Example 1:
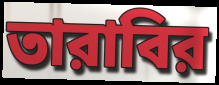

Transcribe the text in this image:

তারাবির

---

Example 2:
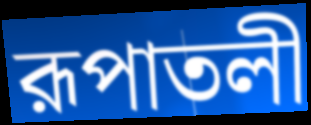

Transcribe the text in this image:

রূপাতলী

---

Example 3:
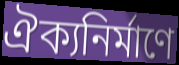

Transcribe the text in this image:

ঐক্যনির্মাণে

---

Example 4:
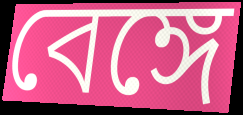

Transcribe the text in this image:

বেঙ্গে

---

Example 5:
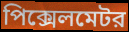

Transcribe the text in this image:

পিক্সেলমেটর